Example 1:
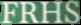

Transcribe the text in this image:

FRHS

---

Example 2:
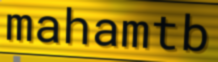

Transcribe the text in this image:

mahamtb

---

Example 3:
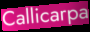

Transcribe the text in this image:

Callicarpa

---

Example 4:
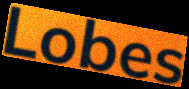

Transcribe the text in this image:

Lobes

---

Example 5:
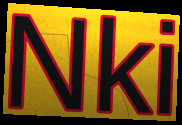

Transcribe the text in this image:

Nki